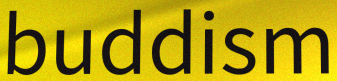
buddism